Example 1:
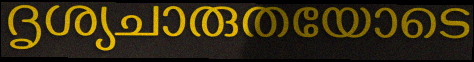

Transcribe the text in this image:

ദൃശ്യചാരുതയോടെ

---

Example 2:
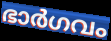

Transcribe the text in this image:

ഭാർഗവം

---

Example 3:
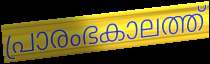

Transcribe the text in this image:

പ്രാരംഭകാലത്ത്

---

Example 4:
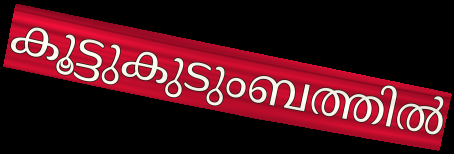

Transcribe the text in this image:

കൂട്ടുകുടുംബത്തിൽ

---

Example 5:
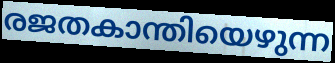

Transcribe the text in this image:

രജതകാന്തിയെഴുന്ന